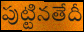
పుట్టినతేదీ